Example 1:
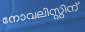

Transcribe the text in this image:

നോവലിസ്റ്റിന്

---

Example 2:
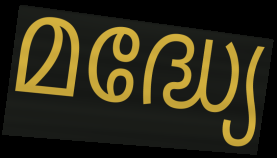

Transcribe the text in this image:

മദ്ധ്യേ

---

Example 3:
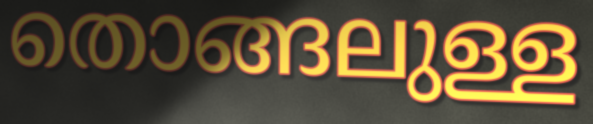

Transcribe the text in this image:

തൊങ്ങലുള്ള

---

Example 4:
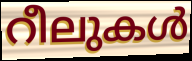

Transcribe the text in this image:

റീലുകൾ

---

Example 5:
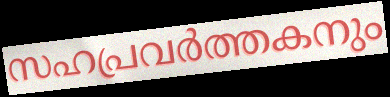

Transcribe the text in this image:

സഹപ്രവർത്തകനും